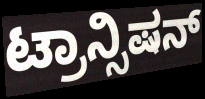
ಟ್ರಾನ್ಸಿಷನ್